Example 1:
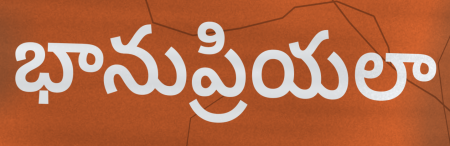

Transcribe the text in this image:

భానుప్రియలా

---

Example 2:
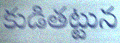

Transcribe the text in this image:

కుడితట్టున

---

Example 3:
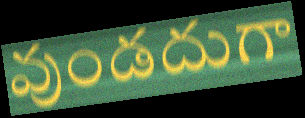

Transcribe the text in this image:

వుండదుగా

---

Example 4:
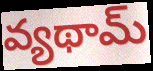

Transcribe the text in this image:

వ్యథామ్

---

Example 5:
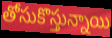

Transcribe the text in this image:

తోసుకొస్తున్నాయి